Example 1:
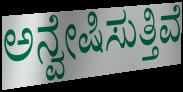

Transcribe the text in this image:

ಅನ್ವೇಷಿಸುತ್ತಿವೆ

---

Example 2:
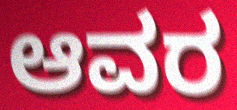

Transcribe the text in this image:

ಆವರ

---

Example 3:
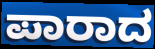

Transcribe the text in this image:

ಪಾರಾದ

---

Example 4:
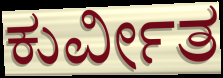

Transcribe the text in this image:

ಕುರ್ವೀತ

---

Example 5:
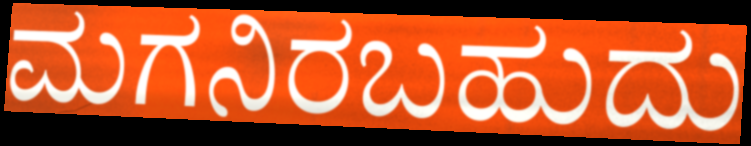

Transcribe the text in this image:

ಮಗನಿರಬಹುದು